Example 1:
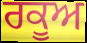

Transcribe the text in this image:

ਰਕੂਅ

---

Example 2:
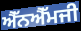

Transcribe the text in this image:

ਐੱਨਐੱਮਜੀ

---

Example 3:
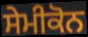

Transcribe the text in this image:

ਸੇਮੀਕੋਨ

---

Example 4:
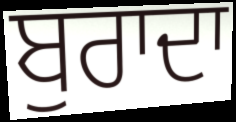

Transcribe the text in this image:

ਬੁਰਾਦਾ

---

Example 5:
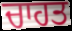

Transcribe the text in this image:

ਚਾਹਤ